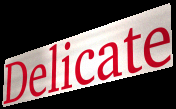
Delicate